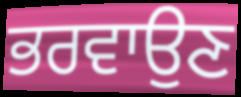
ਭਰਵਾਉਣ